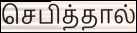
செபித்தால்